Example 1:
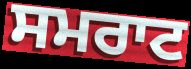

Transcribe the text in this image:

ਸਮਰਾਟ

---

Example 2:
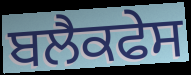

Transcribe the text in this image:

ਬਲੈਕਫੇਸ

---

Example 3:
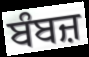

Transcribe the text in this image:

ਬੰਬਜ਼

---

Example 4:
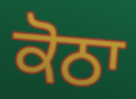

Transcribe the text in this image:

ਕੋਠਾ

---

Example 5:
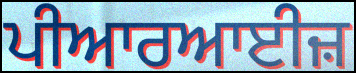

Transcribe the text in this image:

ਪੀਆਰਆਈਜ਼